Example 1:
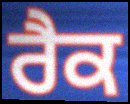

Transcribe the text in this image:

ਰੈਕ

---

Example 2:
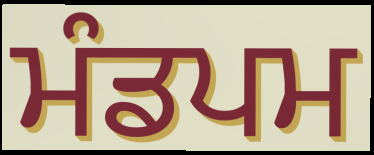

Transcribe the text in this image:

ਮੰਡਪਮ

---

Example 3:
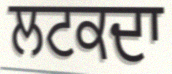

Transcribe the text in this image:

ਲਟਕਦਾ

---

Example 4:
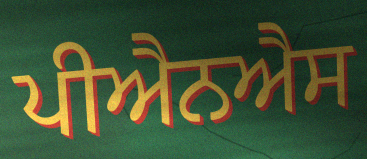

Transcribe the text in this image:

ਪੀਐਨਐਸ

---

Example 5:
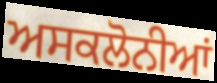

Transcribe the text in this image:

ਅਸਕਲੋਨੀਆਂ